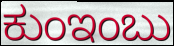
ಕುಂಇಂಬು